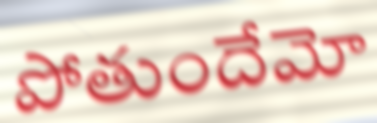
పోతుందేమో